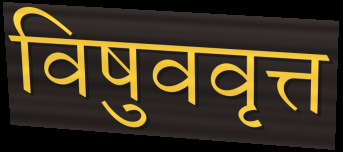
विषुववृत्त